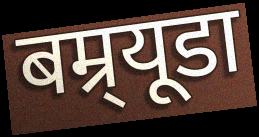
बम्र्यूडा